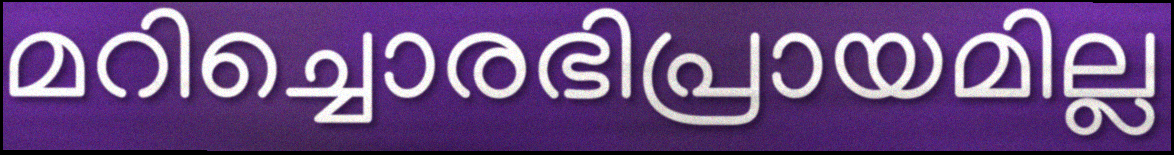
മറിച്ചൊരഭിപ്രായമില്ല